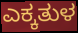
ಎಕ್ಕತುಳ